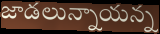
జాడలున్నాయన్న